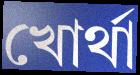
খোৰ্থা